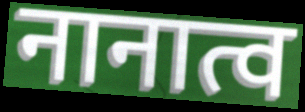
नानात्व